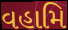
વહામિ